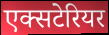
एक्सटेरियर